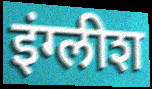
इंग्लीश